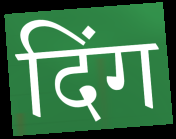
दिंग